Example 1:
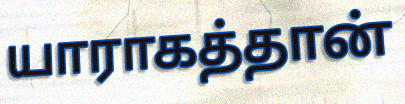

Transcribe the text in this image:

யாராகத்தான்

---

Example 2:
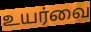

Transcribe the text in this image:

உயர்வை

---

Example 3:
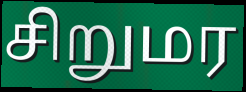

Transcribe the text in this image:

சிறுமர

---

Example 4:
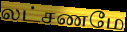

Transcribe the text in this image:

லட்சணமே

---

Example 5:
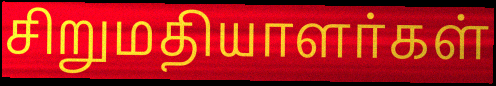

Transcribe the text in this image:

சிறுமதியாளர்கள்